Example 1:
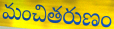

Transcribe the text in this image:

మంచితరుణం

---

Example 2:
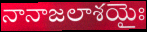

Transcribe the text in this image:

నానాజలాశయైః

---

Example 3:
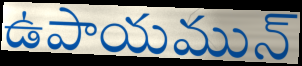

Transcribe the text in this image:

ఉపాయమున్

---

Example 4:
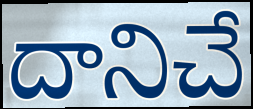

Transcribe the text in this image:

దానిచే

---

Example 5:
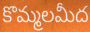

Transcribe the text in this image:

కొమ్మలమీద